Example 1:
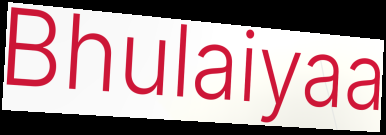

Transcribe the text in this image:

Bhulaiyaa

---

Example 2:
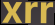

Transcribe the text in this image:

xrr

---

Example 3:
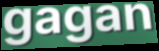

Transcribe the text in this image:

gagan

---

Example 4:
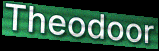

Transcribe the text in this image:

Theodoor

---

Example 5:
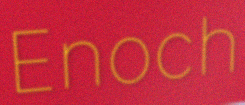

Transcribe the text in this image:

Enoch